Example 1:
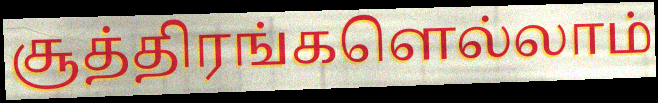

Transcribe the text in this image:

சூத்திரங்களெல்லாம்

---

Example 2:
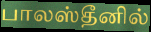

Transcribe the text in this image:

பாலஸ்தீனில்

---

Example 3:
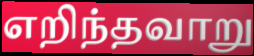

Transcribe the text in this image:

எறிந்தவாறு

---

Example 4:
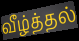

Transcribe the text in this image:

வீழ்த்தல்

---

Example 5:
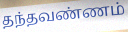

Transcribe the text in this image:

தந்தவண்ணம்